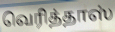
வெரித்தாஸ்